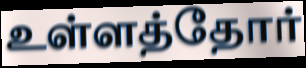
உள்ளத்தோர்